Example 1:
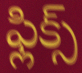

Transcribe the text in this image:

ఫ్లిక్స్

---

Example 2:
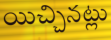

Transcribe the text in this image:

యిచ్చినట్లు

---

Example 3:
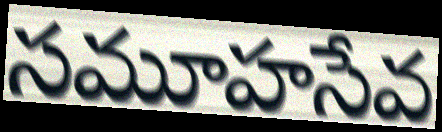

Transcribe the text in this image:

సమూహసేవ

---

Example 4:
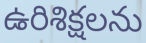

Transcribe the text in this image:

ఉరిశిక్షలను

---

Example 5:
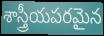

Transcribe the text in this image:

శాస్త్రీయపరమైన